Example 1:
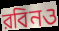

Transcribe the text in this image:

রবিনও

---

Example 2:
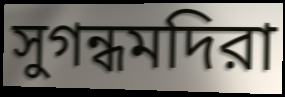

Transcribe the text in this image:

সুগন্ধমদিরা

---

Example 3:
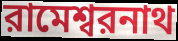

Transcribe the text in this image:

রামেশ্বরনাথ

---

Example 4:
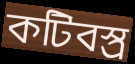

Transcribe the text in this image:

কটিবস্ত্র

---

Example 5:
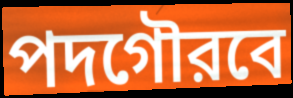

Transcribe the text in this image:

পদগৌরবে